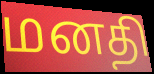
மனதி